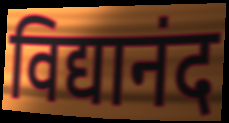
विद्यानंद